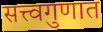
सत्त्वगुणात